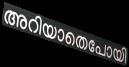
അറിയാതെപോയി